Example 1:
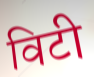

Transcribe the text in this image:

विटी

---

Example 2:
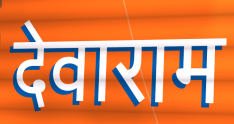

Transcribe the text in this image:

देवाराम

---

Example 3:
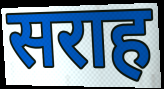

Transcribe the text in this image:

सराह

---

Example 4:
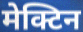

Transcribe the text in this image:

मेक्टिन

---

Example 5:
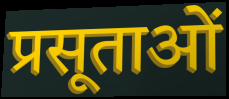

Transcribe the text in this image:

प्रसूताओं